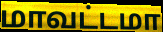
மாவட்டமா